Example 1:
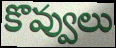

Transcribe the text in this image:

కొవ్వులు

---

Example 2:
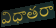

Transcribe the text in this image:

విధాతరా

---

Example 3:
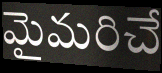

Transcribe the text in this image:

మైమరిచే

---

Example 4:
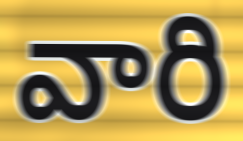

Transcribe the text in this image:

వారి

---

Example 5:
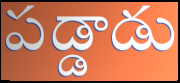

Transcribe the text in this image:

పడ్డాడు